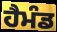
ਹੈਮੰਡ